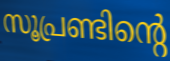
സൂപ്രണ്ടിന്റെ